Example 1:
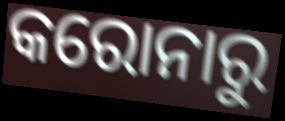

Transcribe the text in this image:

କରୋନାରୁ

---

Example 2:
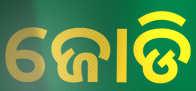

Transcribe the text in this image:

ଜୋଡି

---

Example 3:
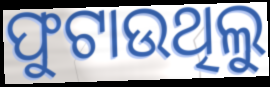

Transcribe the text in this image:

ଫୁଟାଉଥିଲୁ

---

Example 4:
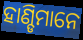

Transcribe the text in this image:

ହାଣ୍ଡିମାନେ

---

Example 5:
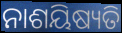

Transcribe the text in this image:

ନାଶୟିଷ୍ୟତି